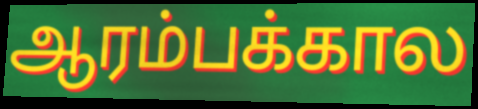
ஆரம்பக்கால